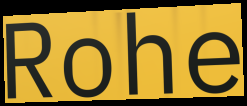
Rohe